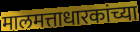
मालमत्ताधारकांच्या